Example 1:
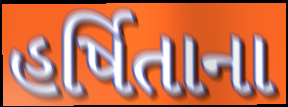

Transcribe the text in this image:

હર્ષિતાના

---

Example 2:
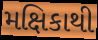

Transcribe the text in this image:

મક્ષિકાથી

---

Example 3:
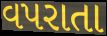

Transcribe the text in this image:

વપરાતા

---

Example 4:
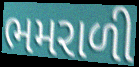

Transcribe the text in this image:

ભમરાળી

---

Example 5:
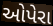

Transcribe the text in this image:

ઓપેરા